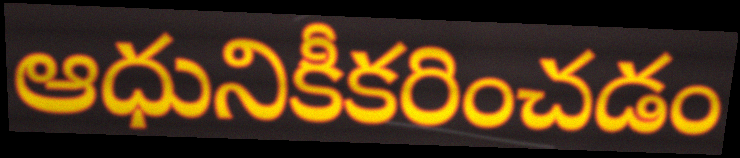
ఆధునికీకరించడం